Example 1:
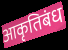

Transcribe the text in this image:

आकृतिबंध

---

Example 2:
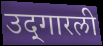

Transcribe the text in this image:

उद्‌गारली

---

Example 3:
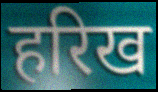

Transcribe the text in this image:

हरिख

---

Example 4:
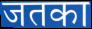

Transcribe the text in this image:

जतका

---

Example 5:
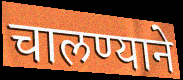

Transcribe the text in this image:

चालण्याने